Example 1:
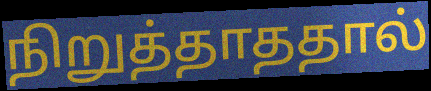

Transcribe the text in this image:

நிறுத்தாததால்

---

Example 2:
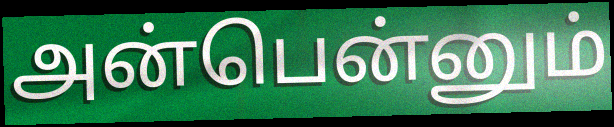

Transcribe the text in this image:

அன்பென்னும்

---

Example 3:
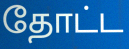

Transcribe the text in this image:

தோட்ட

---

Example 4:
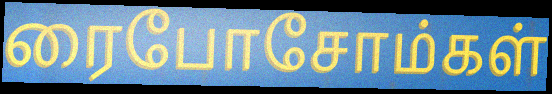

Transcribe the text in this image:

ரைபோசோம்கள்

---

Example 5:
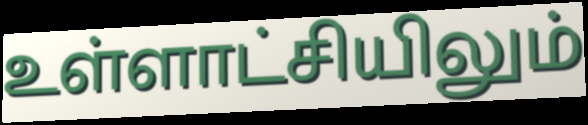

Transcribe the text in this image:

உள்ளாட்சியிலும்